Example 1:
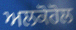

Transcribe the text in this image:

ਅਲਕੋਹੋਲ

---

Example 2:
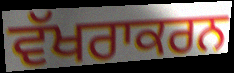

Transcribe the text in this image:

ਵੱਖਰਾਕਰਨ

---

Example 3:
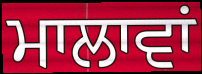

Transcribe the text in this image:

ਮਾਲਾਵਾਂ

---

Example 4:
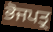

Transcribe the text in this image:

ਭੋਜਪਤ੍ਰ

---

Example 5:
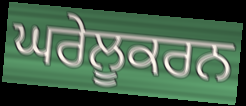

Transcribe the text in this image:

ਘਰੇਲੂਕਰਨ